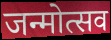
जन्मोत्सव